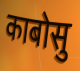
काबोसु